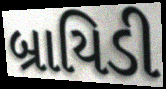
બ્રાયિડી